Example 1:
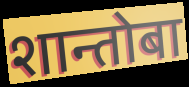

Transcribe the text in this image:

शान्तोबा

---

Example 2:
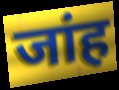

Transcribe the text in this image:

जांह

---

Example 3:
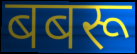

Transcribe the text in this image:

बबरू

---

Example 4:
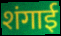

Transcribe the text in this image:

शंगाई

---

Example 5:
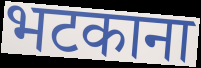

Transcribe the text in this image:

भटकाना